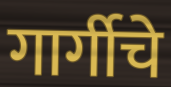
गार्गीचे